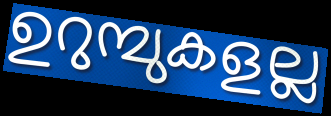
ഉറുമ്പുകളല്ല